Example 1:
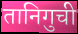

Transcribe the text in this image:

तानिगुची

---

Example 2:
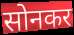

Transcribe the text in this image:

सोनकर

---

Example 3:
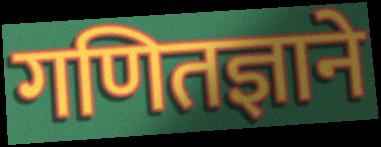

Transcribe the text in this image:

गणितज्ञाने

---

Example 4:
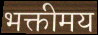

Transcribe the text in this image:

भक्तीमय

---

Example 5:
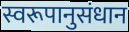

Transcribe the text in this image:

स्वरूपानुसंधान